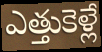
ఎత్తుకెళ్లే